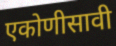
एकोणीसावी